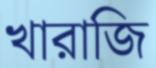
খারাজি